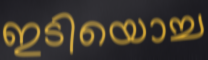
ഇടിയൊച്ച